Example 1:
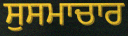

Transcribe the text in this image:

ਸੁਸਮਾਚਾਰ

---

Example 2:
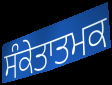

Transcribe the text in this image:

ਸੰਕੇਤਾਤਮਕ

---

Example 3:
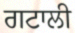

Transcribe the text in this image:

ਗਟਾਲੀ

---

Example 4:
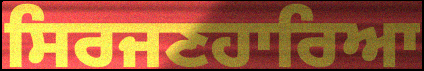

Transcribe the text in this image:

ਸਿਰਜਣਹਾਰਿਆ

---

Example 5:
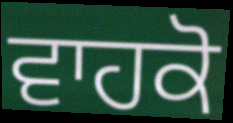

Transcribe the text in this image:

ਵਾਹਕੋ